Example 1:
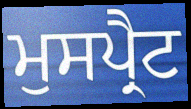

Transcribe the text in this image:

ਮੁਸਪ੍ਰੈਟ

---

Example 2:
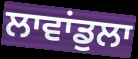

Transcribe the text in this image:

ਲਾਵਾਂਡੁਲਾ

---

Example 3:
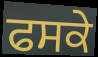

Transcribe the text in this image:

ਫਸਕੇ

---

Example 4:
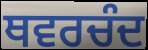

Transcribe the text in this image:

ਥਵਰਚੰਦ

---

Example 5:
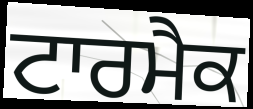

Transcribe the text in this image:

ਟਾਰਮੈਕ